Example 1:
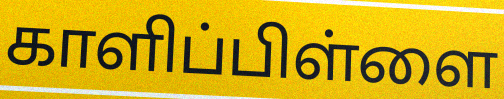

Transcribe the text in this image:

காளிப்பிள்ளை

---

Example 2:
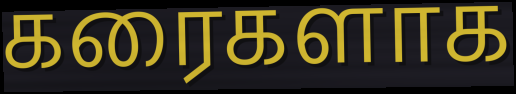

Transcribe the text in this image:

கரைகளாக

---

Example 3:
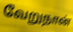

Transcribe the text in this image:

வேறுநான்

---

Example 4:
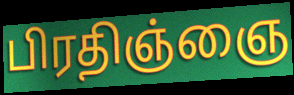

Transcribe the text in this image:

பிரதிஞ்ஞை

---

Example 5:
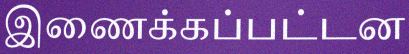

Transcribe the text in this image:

இணைக்கப்பட்டன